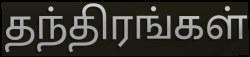
தந்திரங்கள்